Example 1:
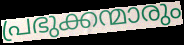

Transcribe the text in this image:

പ്രഭുക്കന്മാരും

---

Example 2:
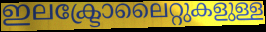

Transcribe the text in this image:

ഇലക്ട്രോലൈറ്റുകളുള്ള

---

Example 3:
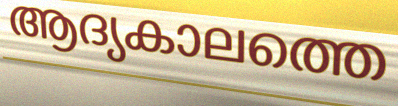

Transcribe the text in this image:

ആദ്യകാലത്തെ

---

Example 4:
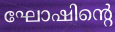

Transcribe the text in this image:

ഘോഷിന്റെ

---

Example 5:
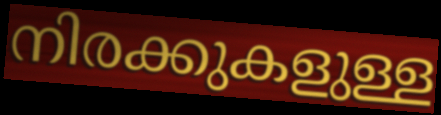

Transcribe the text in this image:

നിരക്കുകളുള്ള